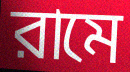
রামে